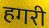
हगरी